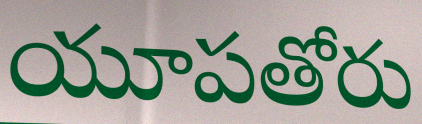
యూపతోరు